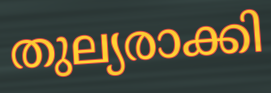
തുല്യരാക്കി